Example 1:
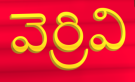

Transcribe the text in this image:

వెర్రివి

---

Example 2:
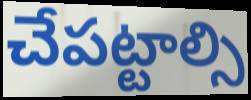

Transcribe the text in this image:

చేపట్టాల్సి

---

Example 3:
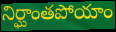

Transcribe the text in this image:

నిర్ఘాంతపోయాం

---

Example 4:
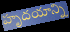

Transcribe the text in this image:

హృదయాన్ని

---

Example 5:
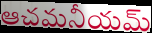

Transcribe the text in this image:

ఆచమనీయమ్